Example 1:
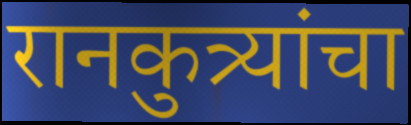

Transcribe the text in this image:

रानकुत्र्यांचा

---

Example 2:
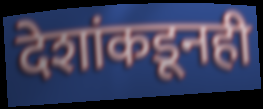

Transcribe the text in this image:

देशांकडूनही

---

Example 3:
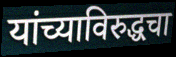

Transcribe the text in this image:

यांच्याविरुद्धचा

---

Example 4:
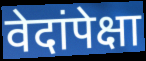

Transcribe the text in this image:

वेदांपेक्षा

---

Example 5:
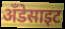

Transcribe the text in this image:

अँडेसाइट